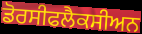
ਡੋਰਸੀਫਲੈਕਸੀਅਨ